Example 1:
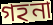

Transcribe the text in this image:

গহনা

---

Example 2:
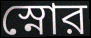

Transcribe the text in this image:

স্নোর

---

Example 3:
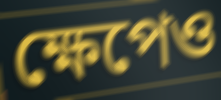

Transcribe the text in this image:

ক্ষেপেও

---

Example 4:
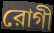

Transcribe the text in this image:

রোগী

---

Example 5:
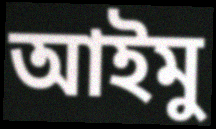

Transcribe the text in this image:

আইমু